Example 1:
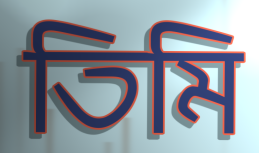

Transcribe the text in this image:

তিমি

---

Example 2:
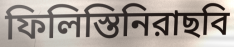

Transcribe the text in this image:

ফিলিস্তিনিরাছবি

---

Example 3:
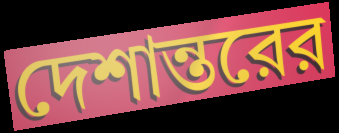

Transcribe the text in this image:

দেশান্তরের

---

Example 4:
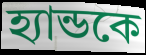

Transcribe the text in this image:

হ্যান্ডকে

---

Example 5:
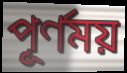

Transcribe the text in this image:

পূর্ণময়